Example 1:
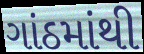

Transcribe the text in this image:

ગાંઠમાંથી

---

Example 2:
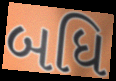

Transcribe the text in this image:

બધિ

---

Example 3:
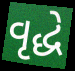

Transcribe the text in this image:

વૃદ્ધે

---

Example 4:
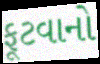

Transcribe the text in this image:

ફૂટવાનો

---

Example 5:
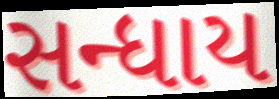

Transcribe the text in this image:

સન્ધાય